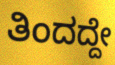
ತಿಂದದ್ದೇ